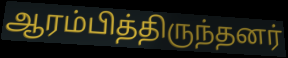
ஆரம்பித்திருந்தனர்